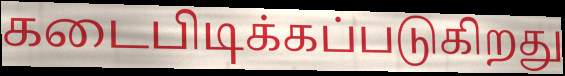
கடைபிடிக்கப்படுகிறது